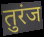
तुरंज